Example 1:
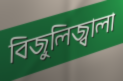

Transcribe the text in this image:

বিজুলিজ্বালা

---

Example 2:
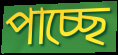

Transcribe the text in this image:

পাচ্ছে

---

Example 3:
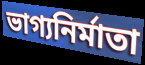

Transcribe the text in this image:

ভাগ্যনির্মাতা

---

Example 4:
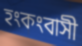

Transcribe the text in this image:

হংকংবাসী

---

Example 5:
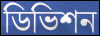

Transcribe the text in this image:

ডিভিশন